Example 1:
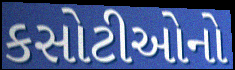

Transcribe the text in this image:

કસોટીઓનો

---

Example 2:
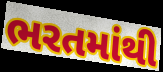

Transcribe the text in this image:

ભરતમાંથી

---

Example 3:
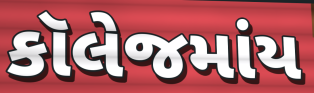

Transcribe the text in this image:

કૉલેજમાંય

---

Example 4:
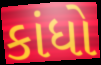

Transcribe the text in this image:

કાંધો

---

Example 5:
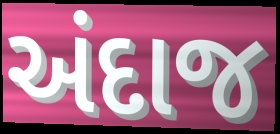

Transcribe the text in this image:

અંદાજ